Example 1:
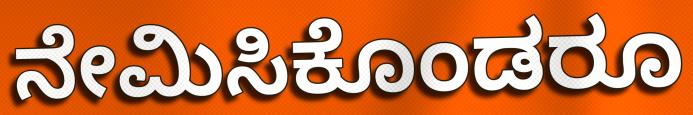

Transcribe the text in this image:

ನೇಮಿಸಿಕೊಂಡರೂ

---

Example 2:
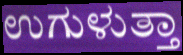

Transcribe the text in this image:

ಉಗುಳುತ್ತಾ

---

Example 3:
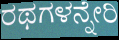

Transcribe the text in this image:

ರಥಗಳನ್ನೇರಿ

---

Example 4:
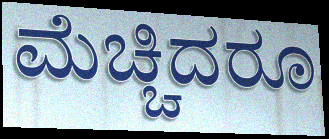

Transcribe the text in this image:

ಮೆಚ್ಚಿದರೂ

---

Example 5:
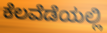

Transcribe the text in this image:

ಕೆಲವೆಡೆಯಲ್ಲಿ